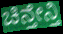
ಚಿನ್ತೇನ್ತಿ